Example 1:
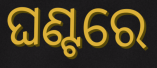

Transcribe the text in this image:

ଘଣ୍ଟରେ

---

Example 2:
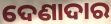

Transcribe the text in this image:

ଦେଣାଦାର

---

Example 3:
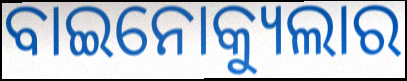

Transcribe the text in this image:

ବାଇନୋକ୍ୟୁଲାର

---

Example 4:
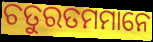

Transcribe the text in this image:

ଚତୁରତମମାନେ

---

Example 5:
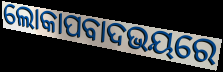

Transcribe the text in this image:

ଲୋକାପବାଦଭୟରେ